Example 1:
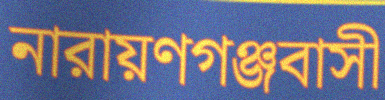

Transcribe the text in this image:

নারায়ণগঞ্জবাসী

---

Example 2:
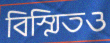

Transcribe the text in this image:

বিস্মিতও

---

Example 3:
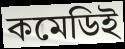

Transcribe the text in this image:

কমেডিই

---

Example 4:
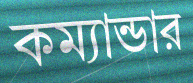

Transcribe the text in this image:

কম্যান্ডার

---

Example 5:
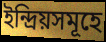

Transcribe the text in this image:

ইন্দ্রিয়সমূহে